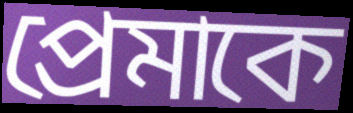
প্রেমাকে